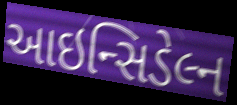
આઇન્સિડેલ્ન